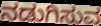
ನಡುಗಿಸುವ